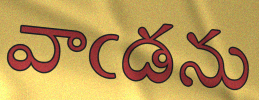
వాఁడను